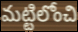
మట్టిలోంచి